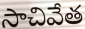
సాచివేత